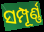
ସମ୍ପୂର୍ଣ୍ଣ